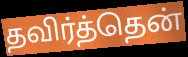
தவிர்த்தென்